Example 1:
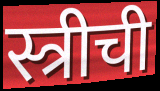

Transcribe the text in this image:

स्त्रीची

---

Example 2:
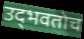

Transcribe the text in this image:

उद्भवतोच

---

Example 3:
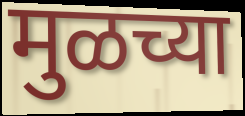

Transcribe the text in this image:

मुळच्या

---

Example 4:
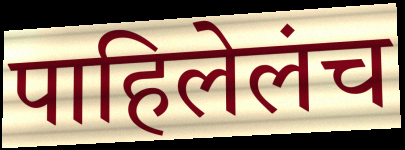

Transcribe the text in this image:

पाहिलेलंच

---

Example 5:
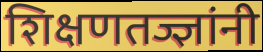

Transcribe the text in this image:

शिक्षणतज्ज्ञांनी